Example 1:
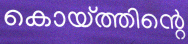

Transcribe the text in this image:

കൊയ്ത്തിന്റെ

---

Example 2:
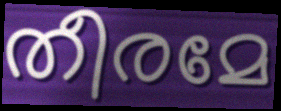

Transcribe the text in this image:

തീരമേ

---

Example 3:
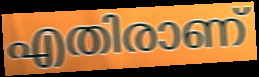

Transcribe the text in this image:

എതിരാണ്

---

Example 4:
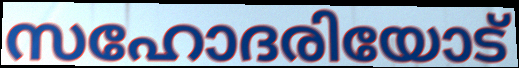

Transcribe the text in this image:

സഹോദരിയോട്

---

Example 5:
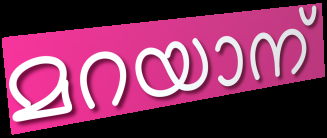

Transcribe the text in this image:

മറയാന്